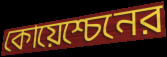
কোয়েশ্চেনের